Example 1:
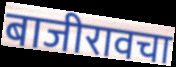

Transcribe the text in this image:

बाजीरावचा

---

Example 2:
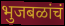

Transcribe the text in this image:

भुजबळांचं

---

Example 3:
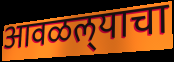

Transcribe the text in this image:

आवळल्याचा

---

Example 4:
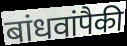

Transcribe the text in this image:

बांधवांपैकी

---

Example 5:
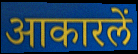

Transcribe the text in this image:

आकारलें